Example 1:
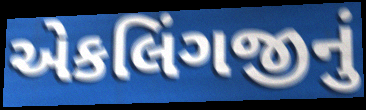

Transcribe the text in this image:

એકલિંગજીનું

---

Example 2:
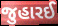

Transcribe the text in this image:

જુહારઈ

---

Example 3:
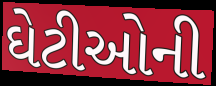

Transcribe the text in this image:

ઘેટીઓની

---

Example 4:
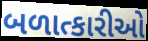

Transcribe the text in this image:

બળાત્કારીઓ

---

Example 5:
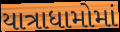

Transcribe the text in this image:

યાત્રાધામોમાં